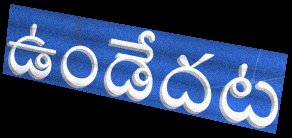
ఉండేదట